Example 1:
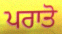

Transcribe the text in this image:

ਪਰਾਤੋ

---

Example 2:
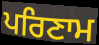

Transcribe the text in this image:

ਪਰਿਣਾਮ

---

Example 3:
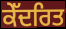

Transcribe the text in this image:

ਕੇੱਦਰਿਤ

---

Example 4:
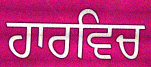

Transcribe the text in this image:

ਹਾਰਵਿਚ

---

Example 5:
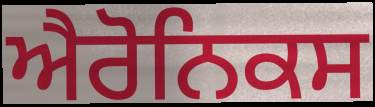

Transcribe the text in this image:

ਐਰੋਨਿਕਸ